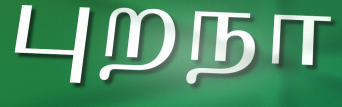
புறநா